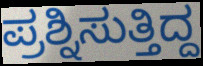
ಪ್ರಶ್ನಿಸುತ್ತಿದ್ದ